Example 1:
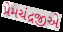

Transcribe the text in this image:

પ્રેમચંદ્રજીએ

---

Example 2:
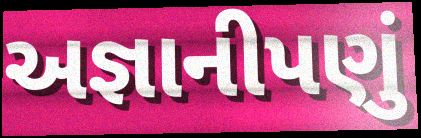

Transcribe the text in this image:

અજ્ઞાનીપણું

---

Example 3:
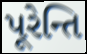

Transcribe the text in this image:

પૂરેન્તિ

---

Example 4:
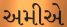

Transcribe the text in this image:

અમીએ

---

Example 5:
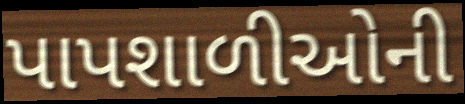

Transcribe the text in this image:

પાપશાળીઓની